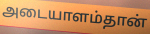
அடையாளம்தான்